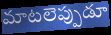
మాటలెప్పుడూ